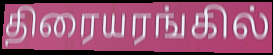
திரையரங்கில்